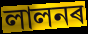
লালনৰ